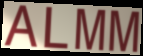
ALMM